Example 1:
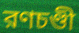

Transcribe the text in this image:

রণচণ্ডী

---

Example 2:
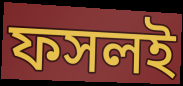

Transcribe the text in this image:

ফসলই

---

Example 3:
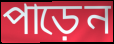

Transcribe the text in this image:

পাড়েন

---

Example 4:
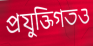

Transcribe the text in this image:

প্রযুক্তিগতও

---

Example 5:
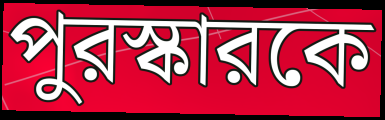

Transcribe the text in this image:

পুরস্কারকে